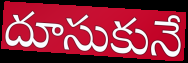
దూసుకునే